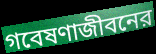
গবেষণাজীবনের